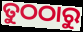
ତୁଠଠାରୁ